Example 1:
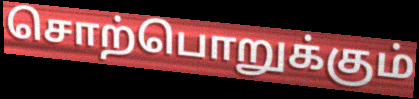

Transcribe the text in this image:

சொற்பொறுக்கும்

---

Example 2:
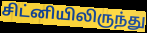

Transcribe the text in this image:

சிட்னியிலிருந்து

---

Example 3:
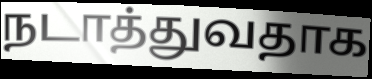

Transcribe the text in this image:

நடாத்துவதாக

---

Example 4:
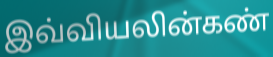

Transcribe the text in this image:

இவ்வியலின்கண்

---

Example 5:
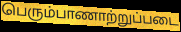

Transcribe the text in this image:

பெரும்பாணாற்றுப்படை